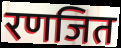
रणजित